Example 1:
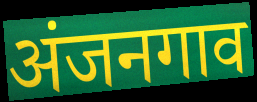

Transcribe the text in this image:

अंजनगाव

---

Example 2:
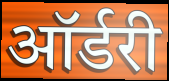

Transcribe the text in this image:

ऑर्डरी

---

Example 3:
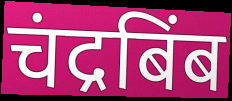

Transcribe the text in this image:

चंद्रबिंब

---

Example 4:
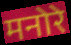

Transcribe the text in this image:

मनोरे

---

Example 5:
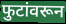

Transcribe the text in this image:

फुटांवरून